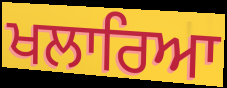
ਖਲਾਰਿਆ